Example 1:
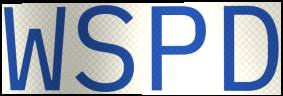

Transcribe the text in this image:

WSPD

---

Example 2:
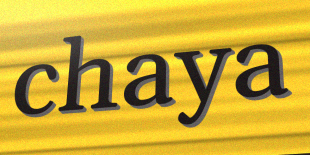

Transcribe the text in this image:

chaya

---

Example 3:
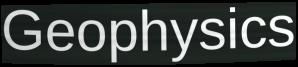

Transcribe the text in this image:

Geophysics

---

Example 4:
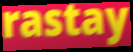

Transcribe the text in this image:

rastay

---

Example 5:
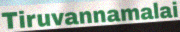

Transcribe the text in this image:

Tiruvannamalai